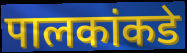
पालकांकडे